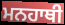
ਮਨਹਾਥੀ